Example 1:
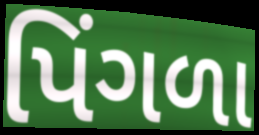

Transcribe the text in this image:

પિંગળા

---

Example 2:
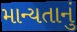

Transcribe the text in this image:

માન્યતાનું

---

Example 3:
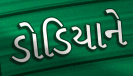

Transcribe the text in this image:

ડોડિયાને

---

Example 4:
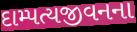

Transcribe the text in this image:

દામ્પત્યજીવનના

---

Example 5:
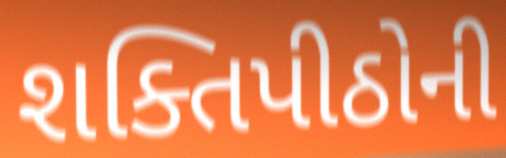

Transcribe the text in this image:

શક્તિપીઠોની